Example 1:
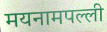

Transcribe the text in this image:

मयनामपल्ली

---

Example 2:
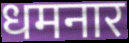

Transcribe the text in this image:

धमनार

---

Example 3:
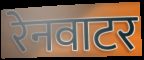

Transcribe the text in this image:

रेनवाटर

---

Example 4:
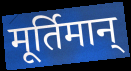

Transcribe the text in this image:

मूर्तिमान्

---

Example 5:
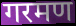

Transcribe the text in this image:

गरमण